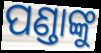
ପଣ୍ଡାଙ୍କୁ